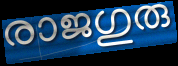
രാജഗുരു